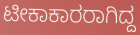
ಟೀಕಾಕಾರರಾಗಿದ್ದ